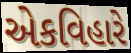
એકવિહારે